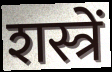
शस्त्रें